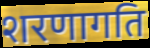
शरणागति